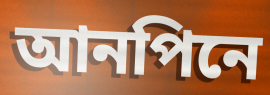
আনপিনে